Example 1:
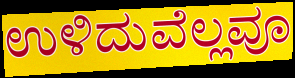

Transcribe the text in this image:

ಉಳಿದುವೆಲ್ಲವೂ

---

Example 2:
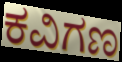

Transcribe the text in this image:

ಕವಿಗಣ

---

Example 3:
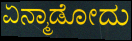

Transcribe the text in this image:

ಏನ್ಮಾಡೋದು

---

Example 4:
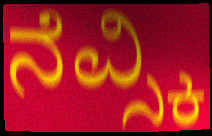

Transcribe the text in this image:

ನೆವ್ಸ್ಕಿ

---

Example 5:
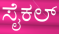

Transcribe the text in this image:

ಸೈಕಲ್